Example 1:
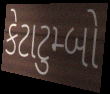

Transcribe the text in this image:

કેટાટુમ્બો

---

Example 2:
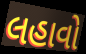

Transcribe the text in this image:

લહાવો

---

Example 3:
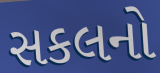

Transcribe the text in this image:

સકલનો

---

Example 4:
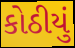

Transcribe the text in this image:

કોઠીયું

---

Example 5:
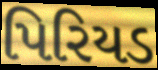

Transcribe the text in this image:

પિરિયડ